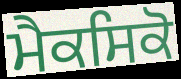
ਮੈਕਸਿਕੋ